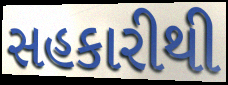
સહકારીથી